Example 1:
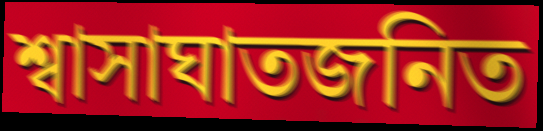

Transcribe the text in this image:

শ্বাসাঘাতজনিত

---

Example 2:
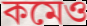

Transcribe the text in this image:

কমেও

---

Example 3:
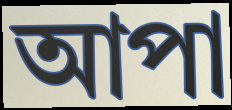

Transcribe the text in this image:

আপা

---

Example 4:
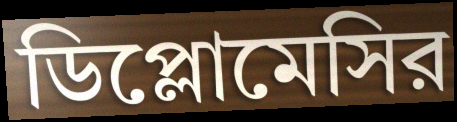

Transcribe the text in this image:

ডিপ্লোমেসির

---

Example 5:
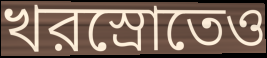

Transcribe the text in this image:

খরস্রোতেও